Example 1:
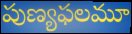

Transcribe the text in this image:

పుణ్యఫలమూ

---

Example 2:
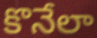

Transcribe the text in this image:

కొనేలా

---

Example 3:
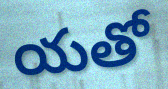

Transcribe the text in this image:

యతో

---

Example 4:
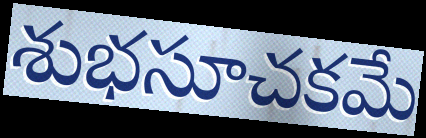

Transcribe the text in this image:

శుభసూచకమే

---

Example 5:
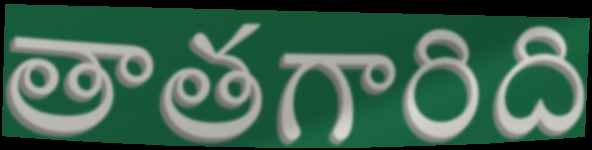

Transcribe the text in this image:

తాతగారిది